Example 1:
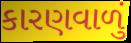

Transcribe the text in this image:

કારણવાળું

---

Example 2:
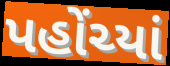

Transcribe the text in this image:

પહોંચ્યાં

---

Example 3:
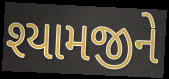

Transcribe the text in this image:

શ્યામજીને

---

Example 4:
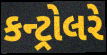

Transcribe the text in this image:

કન્ટ્રોલરે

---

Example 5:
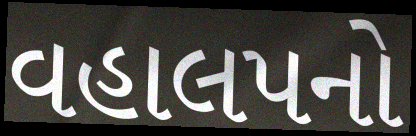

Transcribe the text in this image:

વહાલપનો